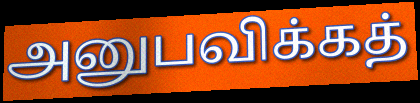
அனுபவிக்கத்